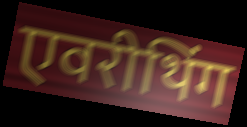
एवरीथिंग